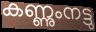
കണ്ണുംനട്ടു